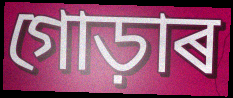
গোড়াৰ